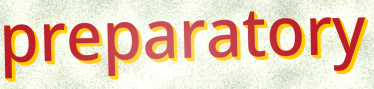
preparatory